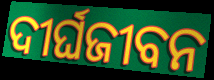
ଦୀର୍ଘଜୀବନ